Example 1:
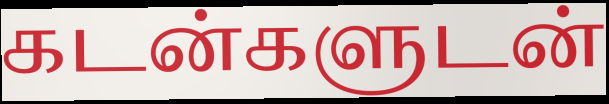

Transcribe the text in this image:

கடன்களுடன்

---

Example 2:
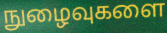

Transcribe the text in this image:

நுழைவுகளை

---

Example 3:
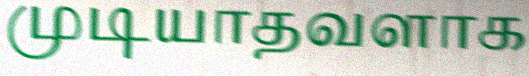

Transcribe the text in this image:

முடியாதவளாக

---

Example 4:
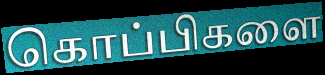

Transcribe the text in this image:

கொப்பிகளை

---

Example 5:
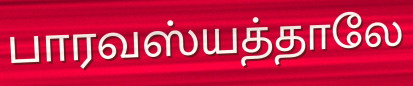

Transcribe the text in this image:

பாரவஸ்யத்தாலே